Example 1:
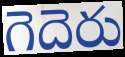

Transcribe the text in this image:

గెదెరు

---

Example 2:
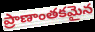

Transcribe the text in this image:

ప్రాణాంతకమైన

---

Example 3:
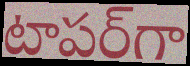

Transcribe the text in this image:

టాపర్‌గా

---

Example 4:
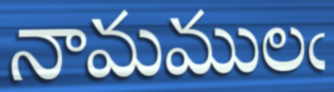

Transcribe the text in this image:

నామములఁ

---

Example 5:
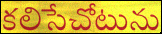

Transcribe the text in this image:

కలిసేచోటును